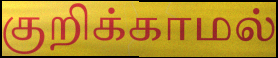
குறிக்காமல்